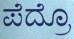
ಪೆದ್ರೊ